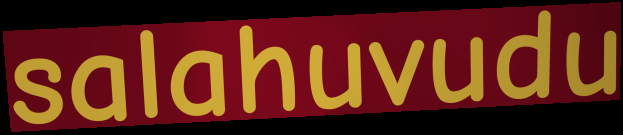
salahuvudu